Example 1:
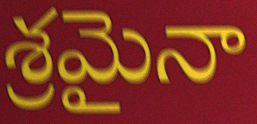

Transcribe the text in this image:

శ్రమైనా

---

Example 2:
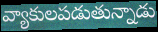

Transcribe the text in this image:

వ్యాకులపడుతున్నాడు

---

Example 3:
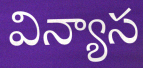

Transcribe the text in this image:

విన్యాస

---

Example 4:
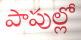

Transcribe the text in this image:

పాపుల్లో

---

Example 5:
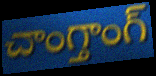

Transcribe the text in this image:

చాంగ్తాంగ్